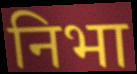
निभा